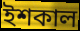
ইশকাল